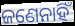
ଜଣେନାହିଁ